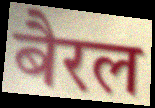
बैरल